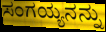
ಸಂಗಯ್ಯನನ್ನು